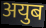
अयुब